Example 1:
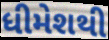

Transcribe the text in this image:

ધીમેશથી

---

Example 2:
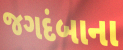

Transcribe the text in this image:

જગદંબાના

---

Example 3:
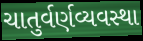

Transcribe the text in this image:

ચાતુર્વર્ણવ્યવસ્થા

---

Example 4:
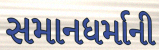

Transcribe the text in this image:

સમાનધર્માની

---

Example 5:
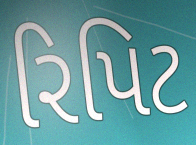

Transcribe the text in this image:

રિપિટ